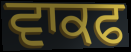
ਵਾਕਫ